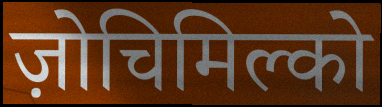
ज़ोचिमिल्को